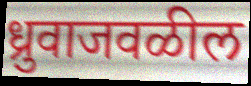
ध्रुवाजवळील